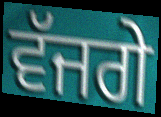
ਵੱਜਗੇ